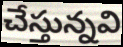
చేస్తున్నవి